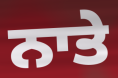
ਨਾਤੇ